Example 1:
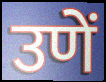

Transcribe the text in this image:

उणें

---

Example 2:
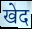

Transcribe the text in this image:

खेद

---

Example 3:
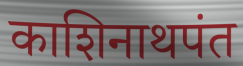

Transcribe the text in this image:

काशिनाथपंत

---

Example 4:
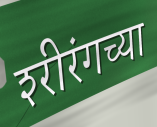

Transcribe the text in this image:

श्रीरंगच्या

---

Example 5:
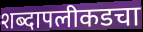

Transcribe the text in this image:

शब्दापलीकडचा